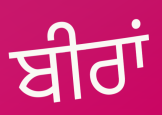
ਬੀਰਾਂ